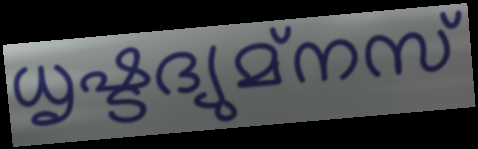
ധൃഷ്ടദ്യുമ്നസ്